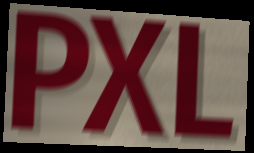
PXL